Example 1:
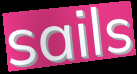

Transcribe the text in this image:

sails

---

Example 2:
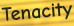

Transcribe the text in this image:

Tenacity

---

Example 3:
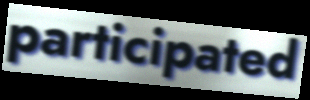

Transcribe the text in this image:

participated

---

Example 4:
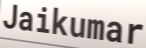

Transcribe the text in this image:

Jaikumar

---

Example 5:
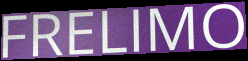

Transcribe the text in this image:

FRELIMO